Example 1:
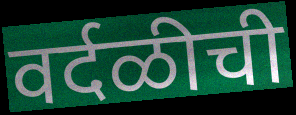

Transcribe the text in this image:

वर्दळीची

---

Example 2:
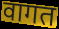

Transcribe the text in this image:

वागत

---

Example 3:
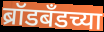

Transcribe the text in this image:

ब्रॉडबँडच्या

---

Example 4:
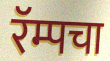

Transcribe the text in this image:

रॅम्पचा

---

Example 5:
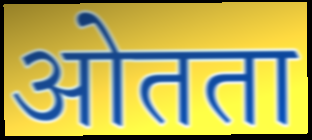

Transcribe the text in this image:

ओतता